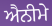
ਐਨੀਮੇ